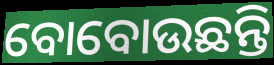
ବୋବୋଉଛନ୍ତି